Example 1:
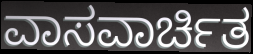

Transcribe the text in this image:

ವಾಸವಾರ್ಚಿತ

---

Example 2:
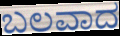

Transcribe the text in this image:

ಬಲವಾದ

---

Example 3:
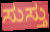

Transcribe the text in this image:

ಸುಸ್ತು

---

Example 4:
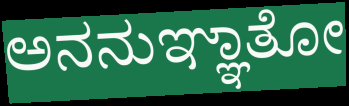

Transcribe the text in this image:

ಅನನುಞ್ಞಾತೋ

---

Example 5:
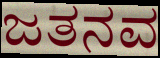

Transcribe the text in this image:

ಜತನವ